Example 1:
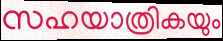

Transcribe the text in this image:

സഹയാത്രികയും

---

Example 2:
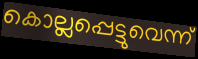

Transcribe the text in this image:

കൊല്ലപ്പെട്ടുവെന്ന്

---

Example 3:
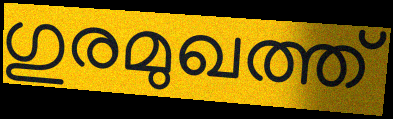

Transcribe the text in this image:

ഗുരമുഖത്ത്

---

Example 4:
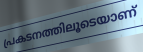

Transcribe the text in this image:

പ്രകടനത്തിലൂടെയാണ്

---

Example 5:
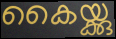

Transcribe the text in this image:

കൈയ്ക്കു